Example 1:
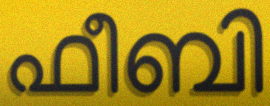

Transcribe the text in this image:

ഫീബി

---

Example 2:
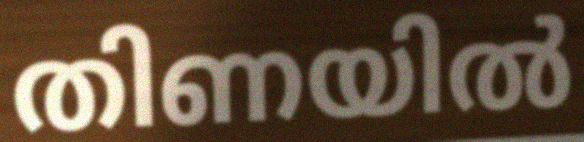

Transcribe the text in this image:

തിണയിൽ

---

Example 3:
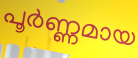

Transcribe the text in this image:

പൂർണ്ണമായ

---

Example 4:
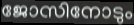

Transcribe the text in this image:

ജോസിനോടും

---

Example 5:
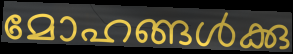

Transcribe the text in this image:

മോഹങ്ങൾക്കു